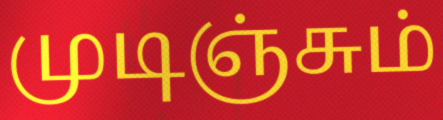
முடிஞ்சும்